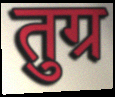
तुग्र